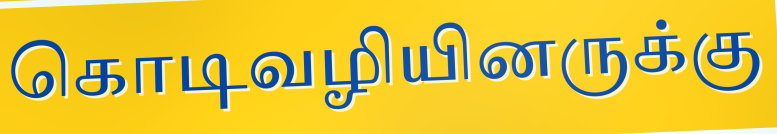
கொடிவழியினருக்கு